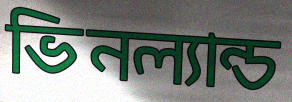
ভিনল্যান্ড